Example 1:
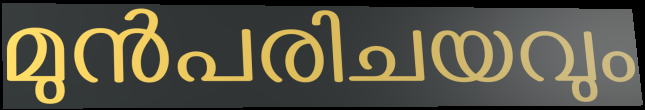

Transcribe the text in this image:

മുൻപരിചയവും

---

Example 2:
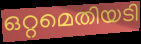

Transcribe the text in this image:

ഒറ്റമെതിയടി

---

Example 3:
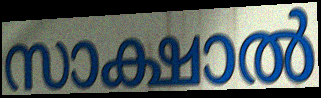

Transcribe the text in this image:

സാക്ഷാൽ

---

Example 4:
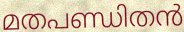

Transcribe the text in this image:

മതപണ്ഡിതൻ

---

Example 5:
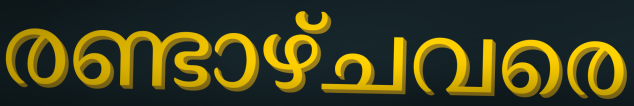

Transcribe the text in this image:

രണ്ടാഴ്ചവരെ